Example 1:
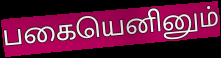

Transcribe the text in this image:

பகையெனினும்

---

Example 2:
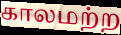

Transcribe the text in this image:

காலமற்ற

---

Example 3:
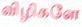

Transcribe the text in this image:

விழிகளே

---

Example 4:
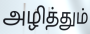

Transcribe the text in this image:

அழித்தும்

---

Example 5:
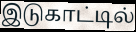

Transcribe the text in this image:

இடுகாட்டில்